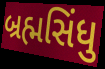
બ્રહ્મસિંધુ